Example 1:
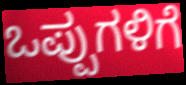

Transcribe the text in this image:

ಒಪ್ಪುಗಳಿಗೆ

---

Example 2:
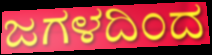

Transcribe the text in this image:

ಜಗಳದಿಂದ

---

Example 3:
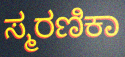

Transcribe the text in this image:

ಸ್ಮರಣಿಕಾ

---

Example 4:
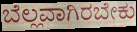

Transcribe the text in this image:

ಬೆಲ್ಲವಾಗಿರಬೇಕು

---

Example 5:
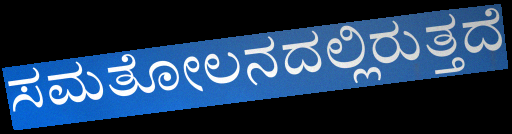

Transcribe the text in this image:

ಸಮತೋಲನದಲ್ಲಿರುತ್ತದೆ